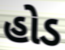
હોડ